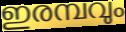
ഇരമ്പവും